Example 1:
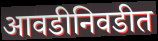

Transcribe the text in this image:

आवडीनिवडीत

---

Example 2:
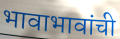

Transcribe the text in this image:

भावाभावांची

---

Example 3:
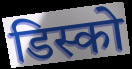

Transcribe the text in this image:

डिस्को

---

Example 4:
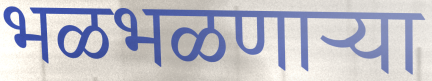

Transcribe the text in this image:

भळभळणाऱ्या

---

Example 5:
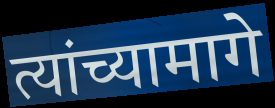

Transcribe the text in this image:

त्यांच्यामागे